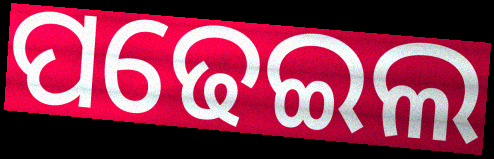
ପଢେଇଲ